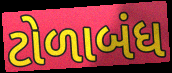
ટોળાબંધ